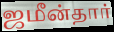
ஜமீன்தார்